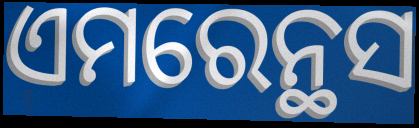
ଏମରେନ୍ଥସ